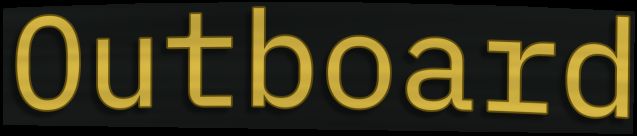
Outboard